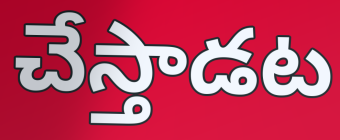
చేస్తాడట